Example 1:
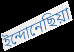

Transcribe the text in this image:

ইন্দোনেছিয়া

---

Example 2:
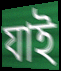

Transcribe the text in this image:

যাই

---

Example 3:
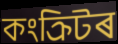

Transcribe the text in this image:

কংক্ৰিটৰ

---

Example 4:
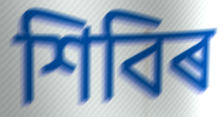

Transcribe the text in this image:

শিবিৰ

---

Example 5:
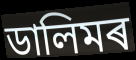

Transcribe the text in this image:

ডালিমৰ